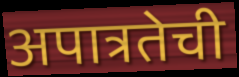
अपात्रतेची